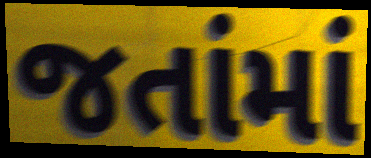
જતાંમાં